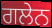
ਗਲੇਨ